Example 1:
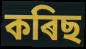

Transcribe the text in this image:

কৰিছ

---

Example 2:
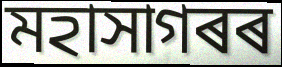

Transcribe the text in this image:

মহাসাগৰৰ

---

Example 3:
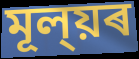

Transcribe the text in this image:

মূল্য়ৰ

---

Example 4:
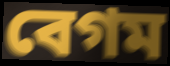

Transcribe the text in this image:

বেগম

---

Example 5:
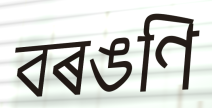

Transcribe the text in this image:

বৰঙণি